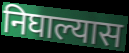
निघाल्यास